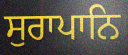
ਸੁਰਾਪਾਨਿ